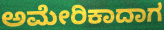
ಅಮೇರಿಕಾದಾಗ